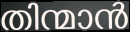
തിന്മാൻ